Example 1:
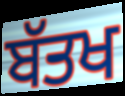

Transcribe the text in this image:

ਬੱਤਖ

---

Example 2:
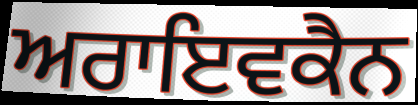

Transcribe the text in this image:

ਅਰਾਇਵਕੈਨ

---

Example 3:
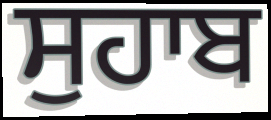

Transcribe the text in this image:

ਸੁਹਾਬ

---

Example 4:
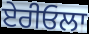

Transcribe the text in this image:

ਏਰੀਓਲਾ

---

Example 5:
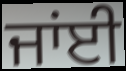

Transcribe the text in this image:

ਜਾਂਈ